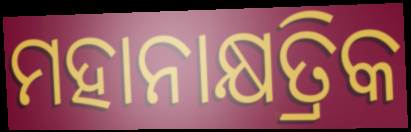
ମହାନାକ୍ଷତ୍ରିକ